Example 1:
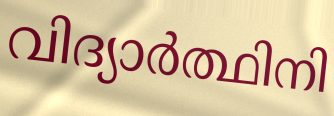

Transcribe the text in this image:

വിദ്യാർത്ഥിനി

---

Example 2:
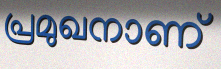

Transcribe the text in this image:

പ്രമുഖനാണ്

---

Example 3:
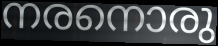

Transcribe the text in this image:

നരനൊരു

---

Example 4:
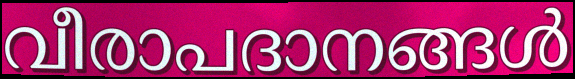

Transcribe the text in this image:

വീരാപദാനങ്ങൾ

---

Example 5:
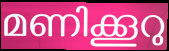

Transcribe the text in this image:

മണിക്കൂറു